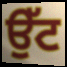
ਉੱਟ